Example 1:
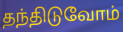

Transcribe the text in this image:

தந்திடுவோம்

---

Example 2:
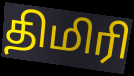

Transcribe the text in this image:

திமிரி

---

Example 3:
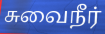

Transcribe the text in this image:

சுவைநீர்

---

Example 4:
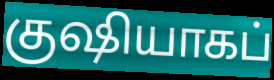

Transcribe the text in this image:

குஷியாகப்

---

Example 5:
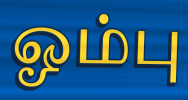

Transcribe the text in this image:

ஓம்பு